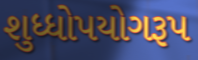
શુધ્ધોપયોગરૂપ